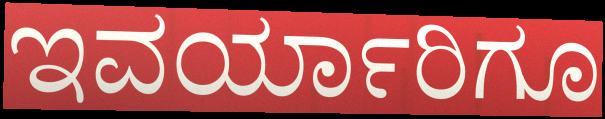
ಇವರ್ಯಾರಿಗೂ